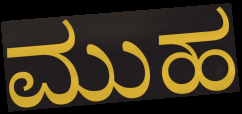
ಮುಹ